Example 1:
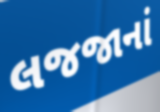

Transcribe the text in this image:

લજજાનાં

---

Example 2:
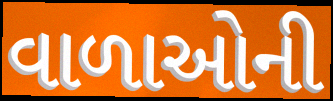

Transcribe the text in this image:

વાળાઓની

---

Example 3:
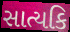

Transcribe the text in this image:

સાત્યકિ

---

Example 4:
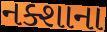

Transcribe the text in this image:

નક્શાના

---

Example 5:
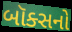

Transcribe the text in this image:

બૉક્સનો